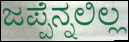
ಜಪ್ಪೆನ್ನಲಿಲ್ಲ